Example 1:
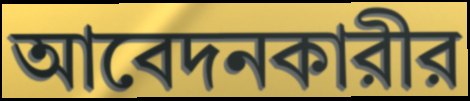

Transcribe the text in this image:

আবেদনকারীর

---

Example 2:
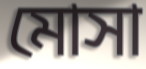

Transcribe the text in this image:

মোসা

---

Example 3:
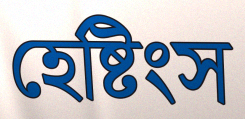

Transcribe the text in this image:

হেষ্টিংস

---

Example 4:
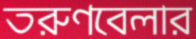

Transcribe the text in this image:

তরুণবেলার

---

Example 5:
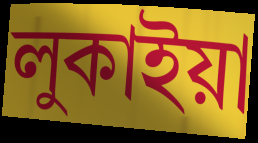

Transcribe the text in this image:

লুকাইয়া